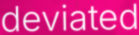
deviated